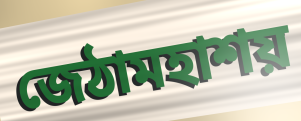
জেঠামহাশয়